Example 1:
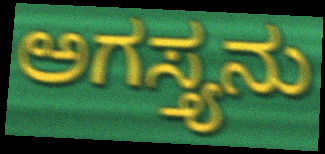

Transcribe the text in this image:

ಅಗಸ್ತ್ಯನು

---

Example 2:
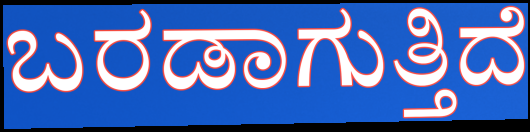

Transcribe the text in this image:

ಬರಡಾಗುತ್ತಿದೆ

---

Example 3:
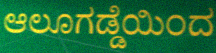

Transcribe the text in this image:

ಆಲೂಗಡ್ಡೆಯಿಂದ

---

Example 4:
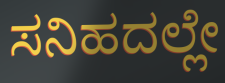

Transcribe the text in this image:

ಸನಿಹದಲ್ಲೇ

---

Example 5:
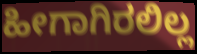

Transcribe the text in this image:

ಹೀಗಾಗಿರಲಿಲ್ಲ